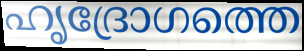
ഹൃദ്രോഗത്തെ